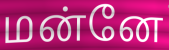
மன்னே